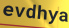
evdhya